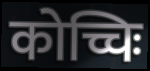
कोच्चिः